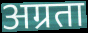
अग्रता